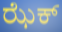
ಝೆಕ್